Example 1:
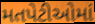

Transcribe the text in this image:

મતપેટીઓમાં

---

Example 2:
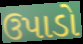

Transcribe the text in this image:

ઉપાડો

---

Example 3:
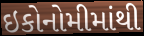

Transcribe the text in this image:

ઇકોનોમીમાંથી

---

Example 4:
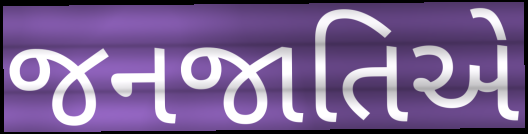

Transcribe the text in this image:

જનજાતિએ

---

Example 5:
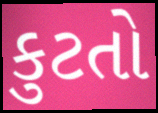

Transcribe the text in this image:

કુટતો